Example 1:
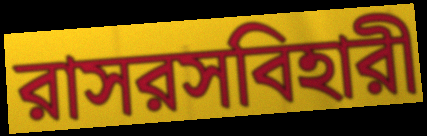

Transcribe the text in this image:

রাসরসবিহারী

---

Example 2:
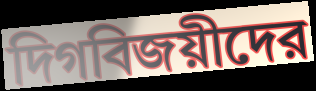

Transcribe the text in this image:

দিগবিজয়ীদের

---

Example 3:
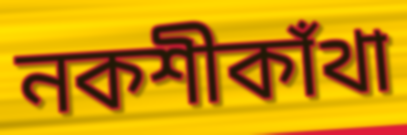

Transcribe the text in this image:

নকশীকাঁথা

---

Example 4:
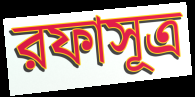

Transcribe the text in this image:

রফাসূত্র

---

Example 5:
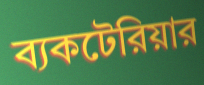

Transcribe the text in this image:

ব্যকটেরিয়ার